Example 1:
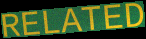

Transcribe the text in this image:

RELATED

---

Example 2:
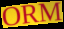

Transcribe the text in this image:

ORM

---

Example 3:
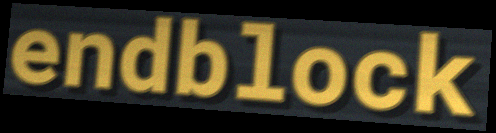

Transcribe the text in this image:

endblock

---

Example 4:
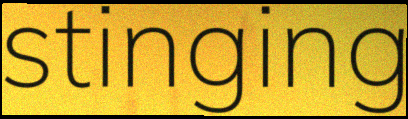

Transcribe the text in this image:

stinging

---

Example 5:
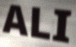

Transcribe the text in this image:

ALI